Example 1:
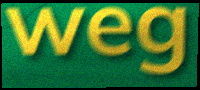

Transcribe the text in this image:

weg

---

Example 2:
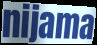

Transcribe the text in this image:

nijama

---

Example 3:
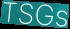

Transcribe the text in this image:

TSGs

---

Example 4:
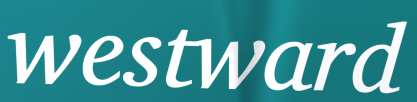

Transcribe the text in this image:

westward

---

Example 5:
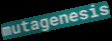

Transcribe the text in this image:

mutagenesis